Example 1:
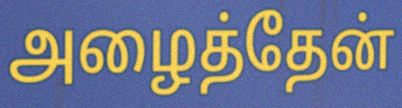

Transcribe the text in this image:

அழைத்தேன்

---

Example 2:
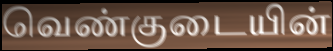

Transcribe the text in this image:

வெண்குடையின்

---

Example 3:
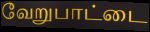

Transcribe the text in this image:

வேறுபாட்டை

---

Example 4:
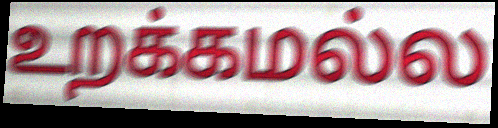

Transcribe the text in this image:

உறக்கமல்ல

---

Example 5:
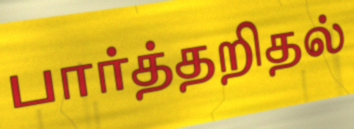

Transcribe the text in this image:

பார்த்தறிதல்